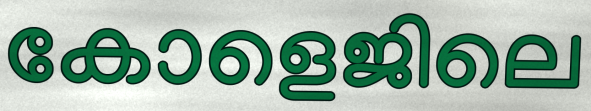
കോളെജിലെ